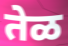
तेळ